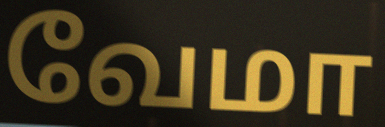
வேமா